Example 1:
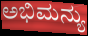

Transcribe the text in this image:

ಅಭಿಮನ್ಯು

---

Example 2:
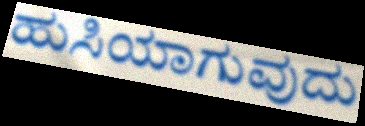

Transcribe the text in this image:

ಹುಸಿಯಾಗುವುದು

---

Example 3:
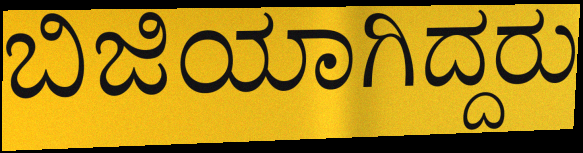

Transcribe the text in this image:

ಬಿಜಿಯಾಗಿದ್ದರು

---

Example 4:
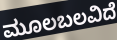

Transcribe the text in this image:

ಮೂಲಬಲವಿದೆ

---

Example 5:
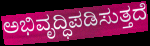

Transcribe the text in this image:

ಅಭಿವೃದ್ಧಿಪಡಿಸುತ್ತದೆ